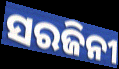
ସରଜିନୀ